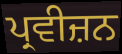
ਪ੍ਰਵੀਜ਼ਨ